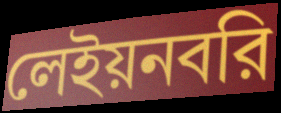
লেইয়নবরি